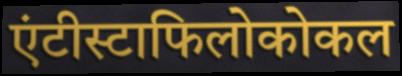
एंटीस्टाफिलोकोकल